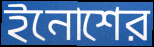
ইনোশের